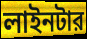
লাইনটার